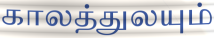
காலத்துலயும்